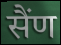
सैंण